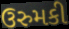
ઉરુમકી